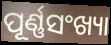
ପୂର୍ଣ୍ଣସଂଖ୍ୟା